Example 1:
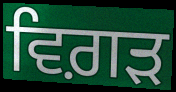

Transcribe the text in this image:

ਵਿਗ਼ੜ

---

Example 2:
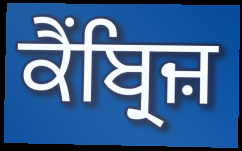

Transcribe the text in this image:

ਕੈਂਬ੍ਰਿਜ਼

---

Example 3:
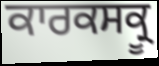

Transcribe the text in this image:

ਕਾਰਕਸਕ੍ਰੂ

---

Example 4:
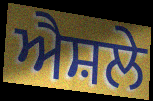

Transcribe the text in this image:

ਐਸ਼ਲੇ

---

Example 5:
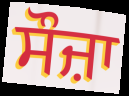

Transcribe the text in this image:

ਸੌਜ਼ਾ